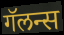
गॅलन्स